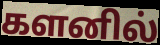
களனில்